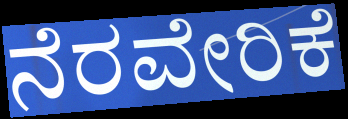
ನೆರವೇರಿಕೆ